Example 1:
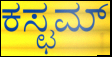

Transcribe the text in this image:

ಕಸ್ಟಮ್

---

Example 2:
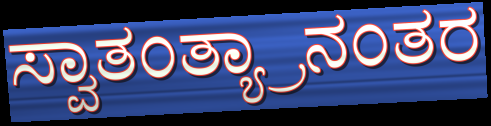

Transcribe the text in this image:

ಸ್ವಾತಂತ್ಯ್ರಾನಂತರ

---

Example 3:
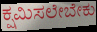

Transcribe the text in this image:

ಕ್ಷಮಿಸಲೇಬೇಕು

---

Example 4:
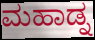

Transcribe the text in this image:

ಮಹಾಡ್ನ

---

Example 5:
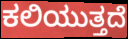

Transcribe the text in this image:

ಕಲಿಯುತ್ತದೆ